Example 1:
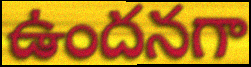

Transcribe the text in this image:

ఉందనగా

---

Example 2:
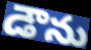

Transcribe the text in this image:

డౌను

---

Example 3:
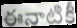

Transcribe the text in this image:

ఈనాటికీ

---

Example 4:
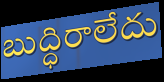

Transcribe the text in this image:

బుద్ధిరాలేదు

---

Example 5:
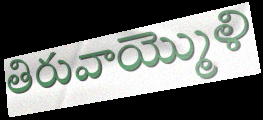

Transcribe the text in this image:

తిరువాయ్మొళి